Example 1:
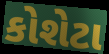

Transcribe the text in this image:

કોશેટા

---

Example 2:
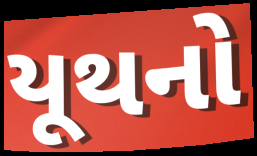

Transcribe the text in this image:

યૂથનો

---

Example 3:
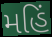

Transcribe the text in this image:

મહિં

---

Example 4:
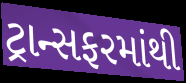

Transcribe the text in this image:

ટ્રાન્સફરમાંથી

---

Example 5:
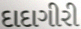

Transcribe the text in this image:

દાદાગીરી